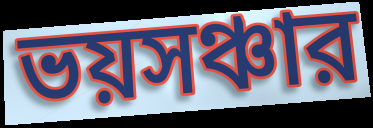
ভয়সঞ্চার